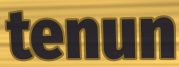
tenun